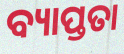
ବ୍ୟାପ୍ତତା